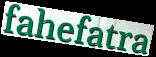
fahefatra